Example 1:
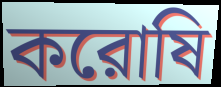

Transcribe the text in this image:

করোষি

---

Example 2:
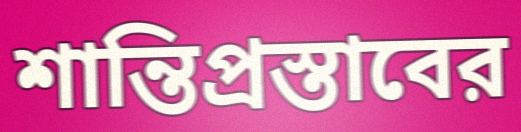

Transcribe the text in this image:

শান্তিপ্রস্তাবের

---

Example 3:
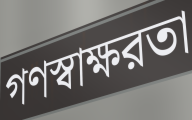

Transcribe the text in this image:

গণস্বাক্ষরতা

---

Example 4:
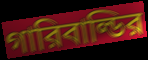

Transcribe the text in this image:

গারিবাল্ডির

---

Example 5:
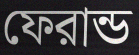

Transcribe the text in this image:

ফেরান্ড